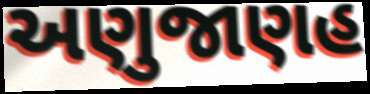
અણુજાણહ